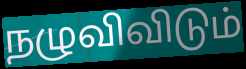
நழுவிவிடும்